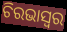
ଚିରଭାସ୍ଵର